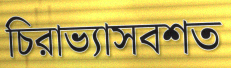
চিরাভ্যাসবশত